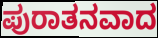
ಪುರಾತನವಾದ